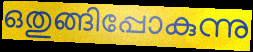
ഒതുങ്ങിപ്പോകുന്നു